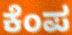
ಕೆಂಪ